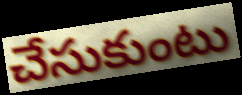
చేసుకుంటు